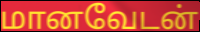
மானவேடன்